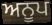
ਅਨੂਪ